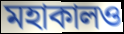
মহাকালও